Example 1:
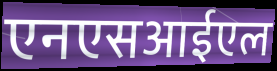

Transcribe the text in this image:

एनएसआईएल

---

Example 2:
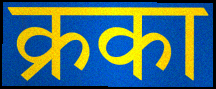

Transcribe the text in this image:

क्रका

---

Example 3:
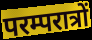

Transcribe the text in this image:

परम्परात्रों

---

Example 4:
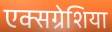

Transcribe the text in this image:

एक्सग्रेशिया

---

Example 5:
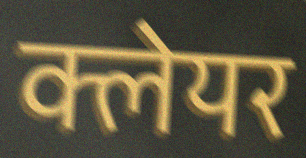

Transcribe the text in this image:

क्लेयर